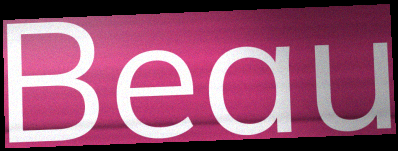
Beau